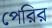
পেরির